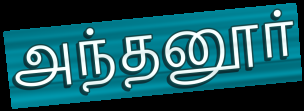
அந்தனூர்